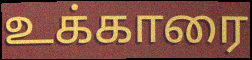
உக்காரை